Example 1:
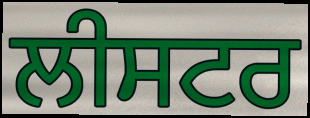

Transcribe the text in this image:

ਲੀਸਟਰ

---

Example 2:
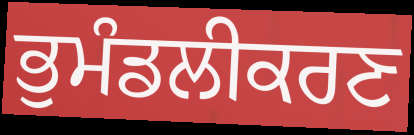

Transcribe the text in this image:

ਭੁਮੰਡਲੀਕਰਣ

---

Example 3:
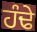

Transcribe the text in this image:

ਹੰਢੇ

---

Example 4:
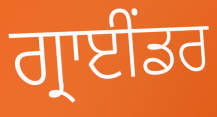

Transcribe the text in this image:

ਗ੍ਰਾਈਂਡਰ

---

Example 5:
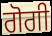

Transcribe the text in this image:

ਗੋਗੀ